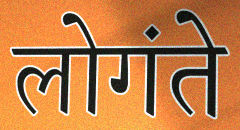
लोगंते